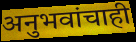
अनुभवांचाही